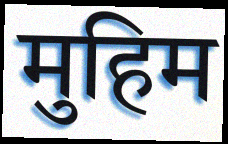
मुहिम